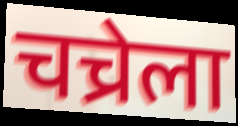
चच्रेला